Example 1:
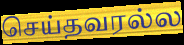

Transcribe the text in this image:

செய்தவரல்ல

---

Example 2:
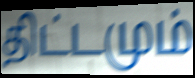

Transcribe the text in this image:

திட்டமும்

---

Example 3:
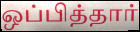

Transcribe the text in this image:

ஒப்பித்தார்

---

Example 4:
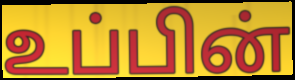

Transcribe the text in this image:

உப்பின்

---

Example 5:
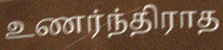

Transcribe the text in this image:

உணர்ந்திராத